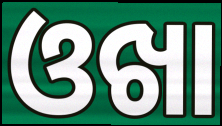
ଓଖା